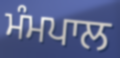
ਮੰਮਪਾਲ